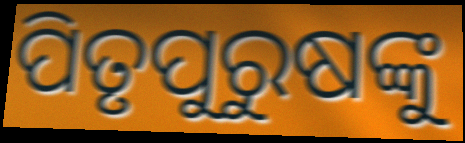
ପିତୃପୁରୁଷଙ୍କୁ